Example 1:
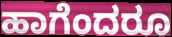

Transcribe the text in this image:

ಹಾಗೆಂದರೂ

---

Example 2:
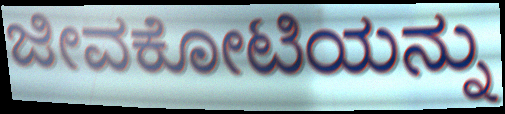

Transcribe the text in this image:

ಜೀವಕೋಟಿಯನ್ನು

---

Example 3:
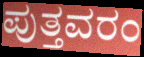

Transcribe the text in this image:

ಪುತ್ತವರಂ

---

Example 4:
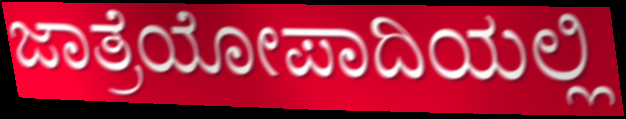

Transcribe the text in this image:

ಜಾತ್ರೆಯೋಪಾದಿಯಲ್ಲಿ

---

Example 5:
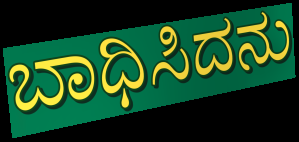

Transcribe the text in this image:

ಬಾಧಿಸಿದನು